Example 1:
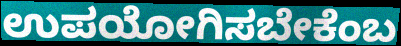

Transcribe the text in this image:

ಉಪಯೋಗಿಸಬೇಕೆಂಬ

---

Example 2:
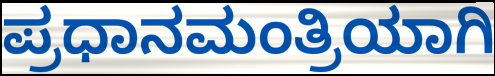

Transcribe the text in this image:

ಪ್ರಧಾನಮಂತ್ರಿಯಾಗಿ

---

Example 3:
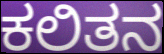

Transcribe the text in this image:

ಕಲಿತನ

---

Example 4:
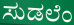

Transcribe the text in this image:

ಸುಡಲೆಂ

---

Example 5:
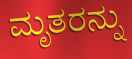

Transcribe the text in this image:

ಮೃತರನ್ನು